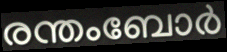
രന്തംബോർ